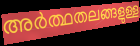
അർത്ഥതലങ്ങളുള്ള